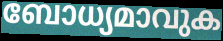
ബോധ്യമാവുക